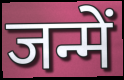
जन्में